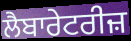
ਲੈਬਾਰੇਟਰੀਜ਼